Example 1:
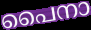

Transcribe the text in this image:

പൈനാ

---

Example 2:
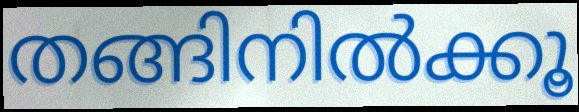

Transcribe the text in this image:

തങ്ങിനിൽക്കൂ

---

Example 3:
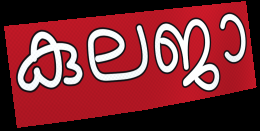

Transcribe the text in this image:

കുലജാ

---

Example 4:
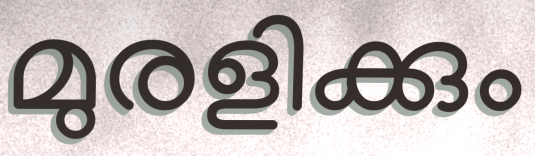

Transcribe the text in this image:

മുരളിക്കും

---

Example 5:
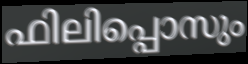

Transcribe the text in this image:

ഫിലിപ്പൊസും